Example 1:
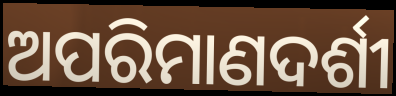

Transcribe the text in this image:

ଅପରିମାଣଦର୍ଶୀ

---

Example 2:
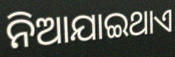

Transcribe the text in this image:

ନିଆଯାଇଥାଏ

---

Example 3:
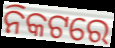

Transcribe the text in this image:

ନିକଟରେ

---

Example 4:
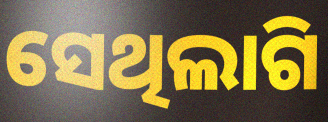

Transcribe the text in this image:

ସେଥିଲାଗି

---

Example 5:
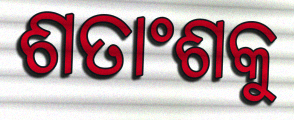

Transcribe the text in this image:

ଶତାଂଶକୁ